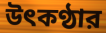
উৎকণ্ঠার